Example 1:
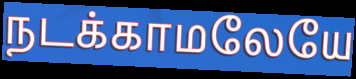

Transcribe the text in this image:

நடக்காமலேயே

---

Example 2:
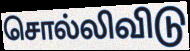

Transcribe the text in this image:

சொல்லிவிடு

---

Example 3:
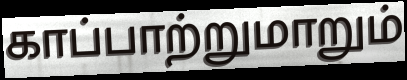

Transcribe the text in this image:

காப்பாற்றுமாறும்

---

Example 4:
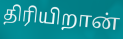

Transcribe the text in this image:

திரியிறான்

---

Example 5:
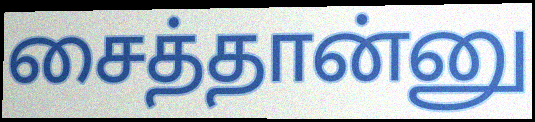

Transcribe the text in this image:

சைத்தான்னு